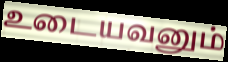
உடையவனும்